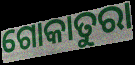
ଗୋକାତୁରା